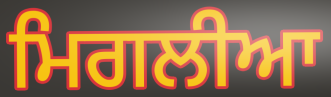
ਮਿਗਲੀਆ